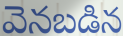
వెనబడిన